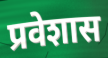
प्रवेशास